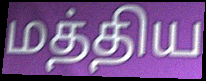
மத்திய